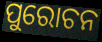
ପୁରୋଚନ